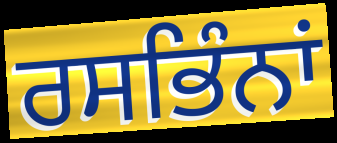
ਰਸਭਿੰਨਾਂ